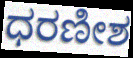
ಧರಣೀಶ